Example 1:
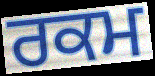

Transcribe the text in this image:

ਰਕਮ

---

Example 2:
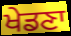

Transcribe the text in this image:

ਖੇਡਣਾ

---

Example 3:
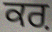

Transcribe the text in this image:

ਕਰ਼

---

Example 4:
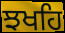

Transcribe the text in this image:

ਝਖਹਿ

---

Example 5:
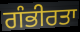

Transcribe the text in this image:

ਗੰਭੀਰਤਾ